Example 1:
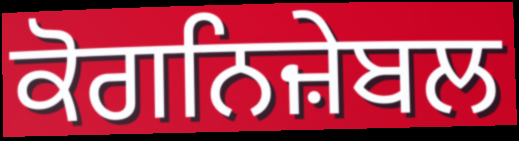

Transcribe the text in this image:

ਕੋਗਨਿਜ਼ੇਬਲ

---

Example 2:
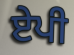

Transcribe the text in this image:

ਏਪੀ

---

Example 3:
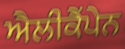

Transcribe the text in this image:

ਐਲੀਕੈਂਪੇਨ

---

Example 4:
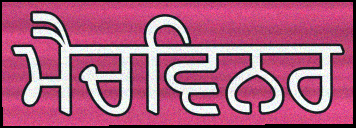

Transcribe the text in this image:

ਮੈਚਵਿਨਰ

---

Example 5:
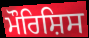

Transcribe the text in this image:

ਮੌਰਿਸ਼ਿਸ